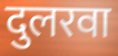
दुलरवा